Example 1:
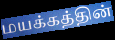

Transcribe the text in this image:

மயக்கத்தின்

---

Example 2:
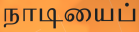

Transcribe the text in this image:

நாடியைப்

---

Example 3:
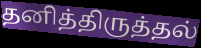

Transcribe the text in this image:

தனித்திருத்தல்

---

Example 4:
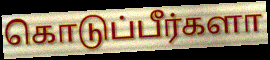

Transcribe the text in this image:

கொடுப்பீர்களா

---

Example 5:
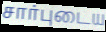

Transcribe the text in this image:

சார்புடைய